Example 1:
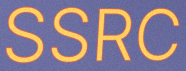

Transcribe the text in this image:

SSRC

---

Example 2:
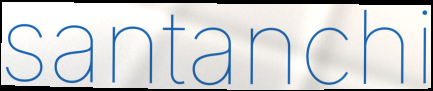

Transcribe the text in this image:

santanchi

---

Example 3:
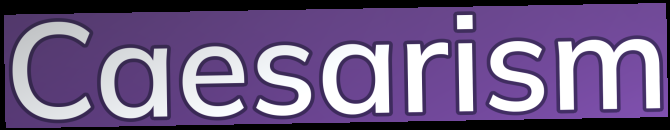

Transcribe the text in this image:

Caesarism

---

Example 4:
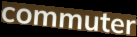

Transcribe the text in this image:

commuter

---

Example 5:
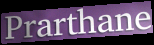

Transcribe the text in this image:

Prarthane